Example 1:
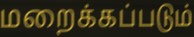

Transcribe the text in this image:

மறைக்கப்படும்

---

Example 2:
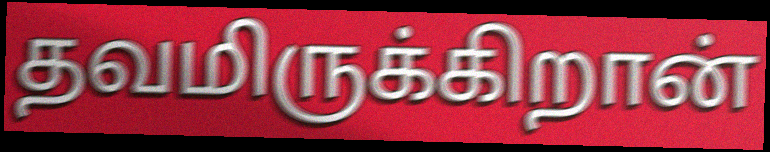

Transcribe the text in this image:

தவமிருக்கிறான்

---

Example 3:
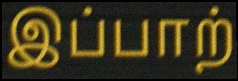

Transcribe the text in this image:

இப்பாற்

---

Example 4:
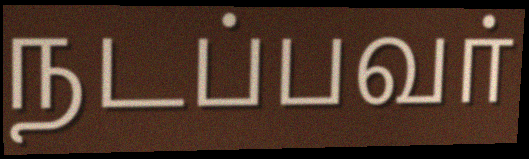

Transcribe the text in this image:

நடப்பவர்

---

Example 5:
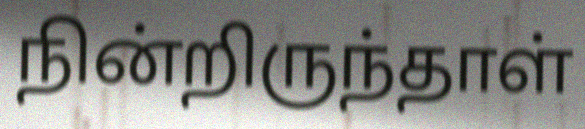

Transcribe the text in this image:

நின்றிருந்தாள்